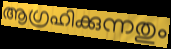
ആഗ്രഹിക്കുന്നതും